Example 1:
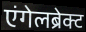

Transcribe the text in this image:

एंगेलब्रेक्ट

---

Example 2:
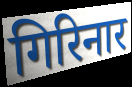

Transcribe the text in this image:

गिरिनार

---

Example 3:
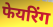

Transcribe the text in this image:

फेयरिंग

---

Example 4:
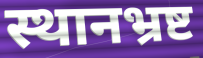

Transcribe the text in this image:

स्थानभ्रष्ट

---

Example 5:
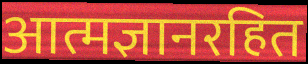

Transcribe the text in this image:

आत्मज्ञानरहित